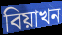
বিয়াখন